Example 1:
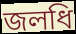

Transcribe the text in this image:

জলধি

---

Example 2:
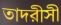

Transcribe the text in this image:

তাদরীসী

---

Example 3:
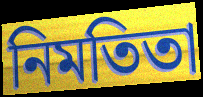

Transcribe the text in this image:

নিমতিতা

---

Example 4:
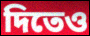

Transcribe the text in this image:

দিতেও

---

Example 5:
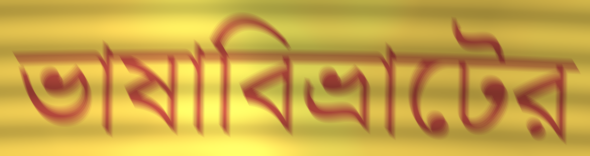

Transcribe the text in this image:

ভাষাবিভ্রাটের